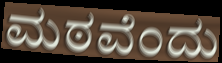
ಮಠವೆಂದು